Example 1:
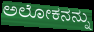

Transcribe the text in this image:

ಅಲೋಕನನ್ನು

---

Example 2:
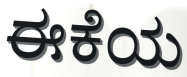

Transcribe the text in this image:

ಈಕೆಯ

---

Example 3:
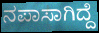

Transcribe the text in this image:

ನಪಾಸಾಗಿದ್ದೆ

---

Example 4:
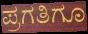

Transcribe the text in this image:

ಪ್ರಗತಿಗೂ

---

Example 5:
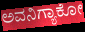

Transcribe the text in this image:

ಅವನಿಗ್ಯಾಕೋ